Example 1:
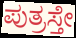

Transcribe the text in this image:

ಪುತ್ರಸ್ತೇ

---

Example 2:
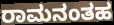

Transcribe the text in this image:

ರಾಮನಂತಹ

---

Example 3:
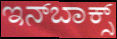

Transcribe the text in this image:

ಇನ್‍ಬಾಕ್ಸ್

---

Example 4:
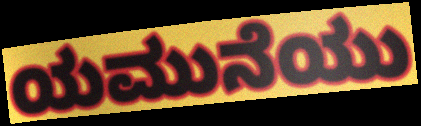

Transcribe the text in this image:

ಯಮುನೆಯು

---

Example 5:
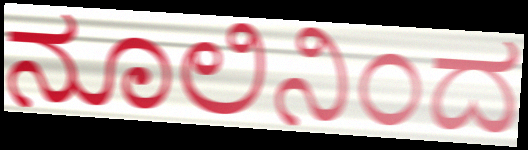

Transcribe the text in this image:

ನೂಲಿನಿಂದ